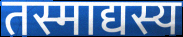
तस्माद्यस्य